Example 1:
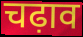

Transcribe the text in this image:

चढ़ाव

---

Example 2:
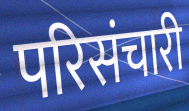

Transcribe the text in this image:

परिसंचारी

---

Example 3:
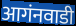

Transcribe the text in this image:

आगंनवाडी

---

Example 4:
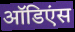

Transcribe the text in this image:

ऑडिएंस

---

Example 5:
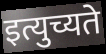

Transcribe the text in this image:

इत्युच्यते